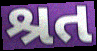
શ્રત